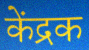
केंद्रक